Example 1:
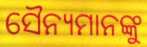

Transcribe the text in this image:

ସୈନ୍ୟମାନଙ୍କୁ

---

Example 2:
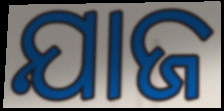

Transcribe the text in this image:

ଯାଜ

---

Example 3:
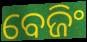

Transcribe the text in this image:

ବେଜିଂ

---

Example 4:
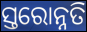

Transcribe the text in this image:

ସ୍ତରୋନ୍ନତି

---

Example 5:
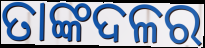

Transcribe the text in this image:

ତାଙ୍କଦଳର